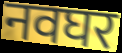
नवघर